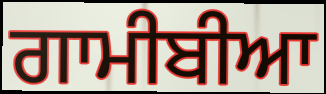
ਗਾਮੀਬੀਆ